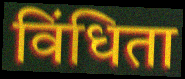
विंधिता